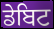
ਡੇਬਿਟ